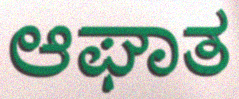
ಆಘಾತ